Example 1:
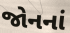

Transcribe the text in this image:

જોનનાં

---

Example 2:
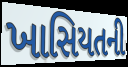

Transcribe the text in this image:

ખાસિયતની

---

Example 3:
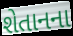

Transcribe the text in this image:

શેતાનના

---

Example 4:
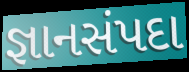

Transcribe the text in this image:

જ્ઞાનસંપદા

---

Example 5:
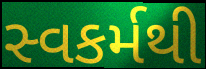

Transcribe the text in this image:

સ્વકર્મથી